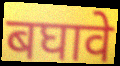
बघावे